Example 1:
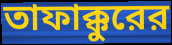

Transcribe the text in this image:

তাফাক্কুরের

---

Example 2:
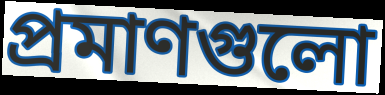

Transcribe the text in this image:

প্রমাণগুলো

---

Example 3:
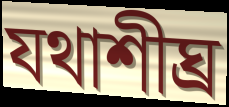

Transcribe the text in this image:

যথাশীঘ্র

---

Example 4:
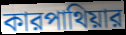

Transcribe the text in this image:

কারপাথিয়ার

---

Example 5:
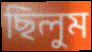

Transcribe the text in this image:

ছিলুম